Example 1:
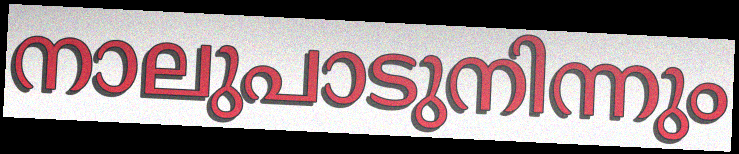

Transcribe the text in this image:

നാലുപാടുനിന്നും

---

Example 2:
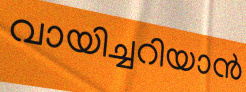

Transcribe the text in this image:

വായിച്ചറിയാൻ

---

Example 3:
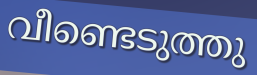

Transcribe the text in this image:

വീണ്ടെടുത്തു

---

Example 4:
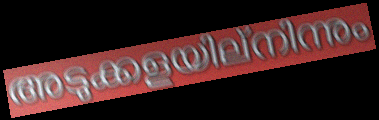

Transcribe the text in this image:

അടുക്കളയില്നിന്നും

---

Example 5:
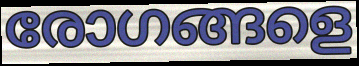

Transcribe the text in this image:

രോഗങ്ങളെ